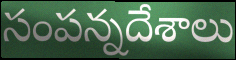
సంపన్నదేశాలు